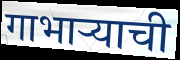
गाभार्‍याची